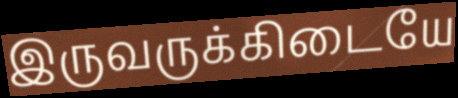
இருவருக்கிடையே